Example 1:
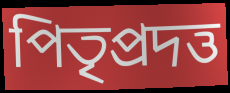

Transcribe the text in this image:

পিতৃপ্রদত্ত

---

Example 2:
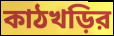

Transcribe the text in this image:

কাঠখড়ির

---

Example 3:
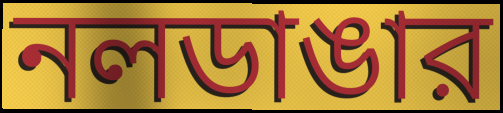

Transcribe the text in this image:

নলডাঙার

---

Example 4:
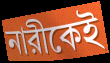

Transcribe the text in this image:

নারীকেই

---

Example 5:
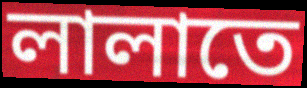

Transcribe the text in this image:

লালাতে